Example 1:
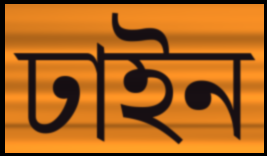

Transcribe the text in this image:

ঢাইন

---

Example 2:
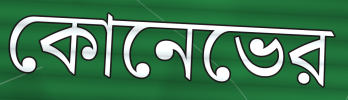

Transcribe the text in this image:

কোনেভের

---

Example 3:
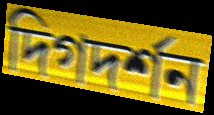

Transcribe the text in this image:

দিগদর্শন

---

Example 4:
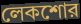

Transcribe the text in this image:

লেকশোর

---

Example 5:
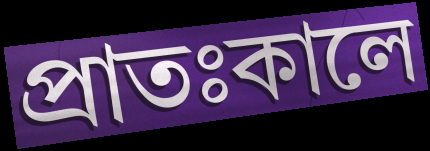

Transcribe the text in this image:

প্রাতঃকালে